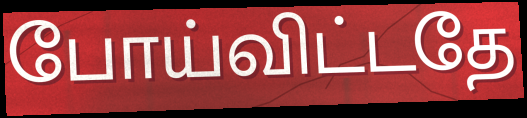
போய்விட்டதே